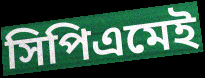
সিপিএমেই